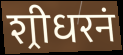
श्रीधरनं